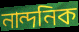
নান্দনিক